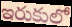
ఇరుకులో